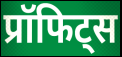
प्रॉफिट्स